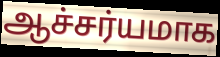
ஆச்சர்யமாக